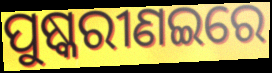
ପୁଷ୍କରୀଣଇରେ